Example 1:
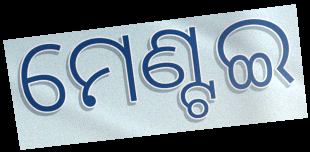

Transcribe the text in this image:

ମେଣ୍ଟଇ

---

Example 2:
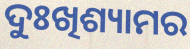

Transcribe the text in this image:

ଦୁଃଖିଶ୍ୟାମର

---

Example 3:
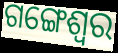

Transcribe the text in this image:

ଗଙ୍ଗେଶ୍ଵର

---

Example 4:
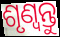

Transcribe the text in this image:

ଶୃଣ୍ଵନ୍ତୁ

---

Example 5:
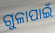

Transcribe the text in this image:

ଗୁଳାପାଇଁ